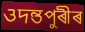
ওদন্তপুৰীৰ